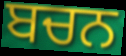
ਬਚਨ